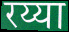
रय्या